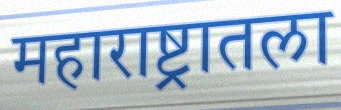
महाराष्ट्रातला